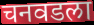
चनवडला